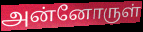
அன்னோருள்